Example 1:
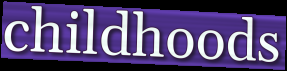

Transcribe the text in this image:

childhoods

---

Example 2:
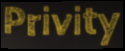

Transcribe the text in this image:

Privity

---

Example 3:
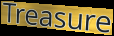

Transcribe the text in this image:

Treasure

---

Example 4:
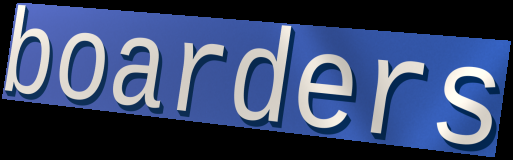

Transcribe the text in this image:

boarders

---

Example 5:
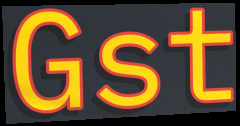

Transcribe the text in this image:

Gst